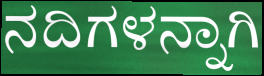
ನದಿಗಳನ್ನಾಗಿ